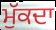
ਮੁੱਕਦਾ